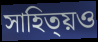
সাহিত্য়ও